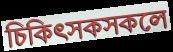
চিকিৎসকসকলে